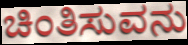
ಚಿಂತಿಸುವನು